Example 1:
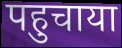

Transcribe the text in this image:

पहुचाया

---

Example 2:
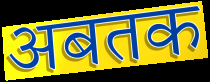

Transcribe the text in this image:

अबतक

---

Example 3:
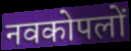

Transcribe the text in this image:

नवकोपलों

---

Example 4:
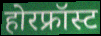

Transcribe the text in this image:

होरफ्रॉस्ट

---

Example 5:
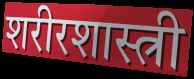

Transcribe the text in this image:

शरीरशास्त्री